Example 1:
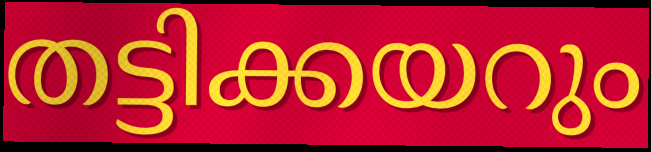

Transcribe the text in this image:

തട്ടിക്കയറും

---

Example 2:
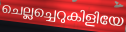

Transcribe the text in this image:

ചെല്ലച്ചെറുകിളിയേ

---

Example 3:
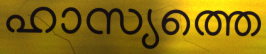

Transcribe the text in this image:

ഹാസ്യത്തെ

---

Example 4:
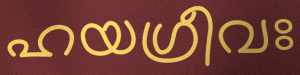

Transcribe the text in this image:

ഹയഗ്രീവഃ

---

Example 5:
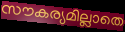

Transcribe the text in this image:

സൗകര്യമില്ലാതെ